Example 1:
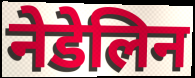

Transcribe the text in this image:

नेडेलिन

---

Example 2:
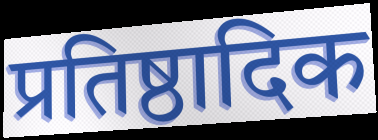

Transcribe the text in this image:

प्रतिष्ठादिक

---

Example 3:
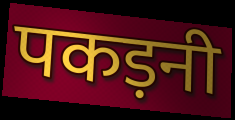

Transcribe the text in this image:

पकड़नी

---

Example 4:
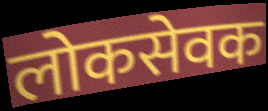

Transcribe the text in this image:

लोकसेवक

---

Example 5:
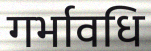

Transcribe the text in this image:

गर्भावधि